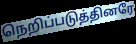
நெறிப்படுத்தினரே